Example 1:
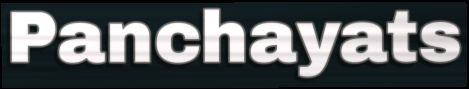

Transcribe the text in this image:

Panchayats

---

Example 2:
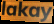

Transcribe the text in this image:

lakay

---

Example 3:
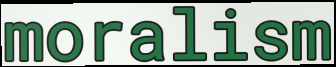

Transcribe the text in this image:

moralism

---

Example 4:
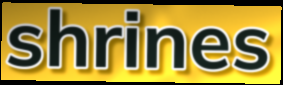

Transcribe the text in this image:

shrines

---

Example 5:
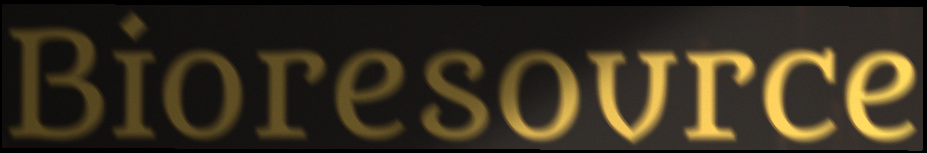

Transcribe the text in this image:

Bioresource